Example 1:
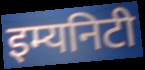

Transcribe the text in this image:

इम्यनिटी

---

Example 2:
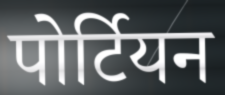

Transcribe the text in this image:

पोर्टियन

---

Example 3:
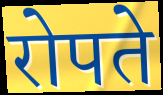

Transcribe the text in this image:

रोपते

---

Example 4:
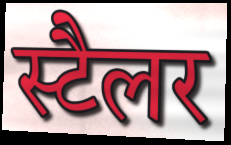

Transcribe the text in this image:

स्टैलर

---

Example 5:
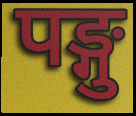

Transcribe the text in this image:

पङ्गु